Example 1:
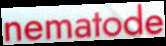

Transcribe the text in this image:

nematode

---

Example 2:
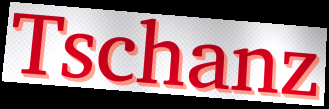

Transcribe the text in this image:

Tschanz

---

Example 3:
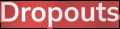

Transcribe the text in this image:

Dropouts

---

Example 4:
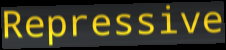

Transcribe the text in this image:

Repressive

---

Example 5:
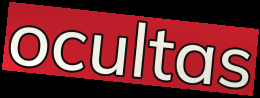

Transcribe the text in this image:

ocultas